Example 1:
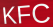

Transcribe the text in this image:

KFC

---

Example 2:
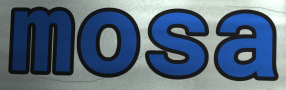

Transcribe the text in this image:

mosa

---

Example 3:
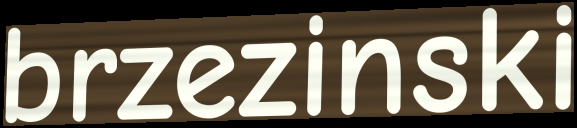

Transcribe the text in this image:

brzezinski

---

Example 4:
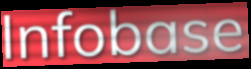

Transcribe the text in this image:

Infobase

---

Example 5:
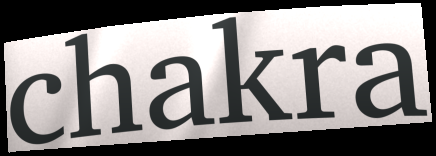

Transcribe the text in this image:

chakra